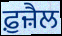
ਫ਼ੁਜ਼ੈਲ